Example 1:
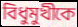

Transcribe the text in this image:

বিধুমুখীকে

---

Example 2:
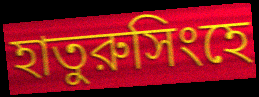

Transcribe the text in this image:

হাতুরুসিংহে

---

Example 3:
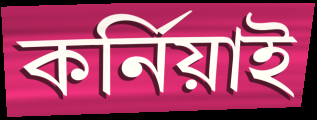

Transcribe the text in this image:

কর্নিয়াই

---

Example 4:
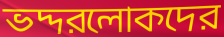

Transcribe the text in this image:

ভদ্দরলোকদের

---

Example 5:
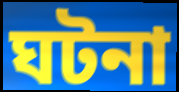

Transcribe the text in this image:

ঘটনা